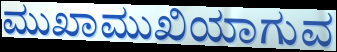
ಮುಖಾಮುಖಿಯಾಗುವ